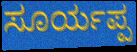
ಸೂರ್ಯಪ್ಪ